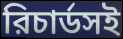
রিচার্ডসই